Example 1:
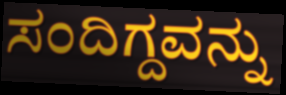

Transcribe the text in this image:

ಸಂದಿಗ್ದವನ್ನು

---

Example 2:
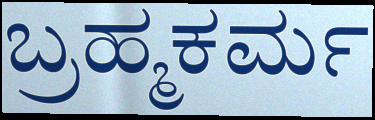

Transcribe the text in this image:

ಬ್ರಹ್ಮಕರ್ಮ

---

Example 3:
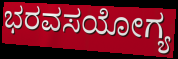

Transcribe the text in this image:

ಭರವಸಯೋಗ್ಯ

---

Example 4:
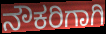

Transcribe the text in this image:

ನೌಕರಿಗಾಗಿ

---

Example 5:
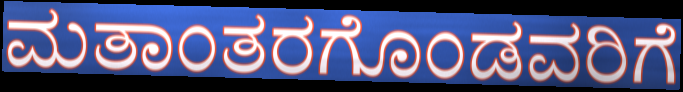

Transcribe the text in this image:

ಮತಾಂತರಗೊಂಡವರಿಗೆ